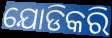
ଯୋଡିକରି